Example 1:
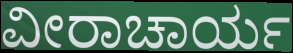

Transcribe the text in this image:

ವೀರಾಚಾರ್ಯ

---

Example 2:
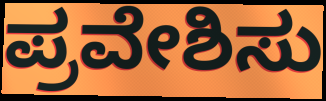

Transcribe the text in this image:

ಪ್ರವೇಶಿಸು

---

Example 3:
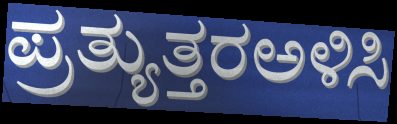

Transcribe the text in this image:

ಪ್ರತ್ಯುತ್ತರಅಳಿಸಿ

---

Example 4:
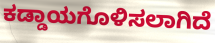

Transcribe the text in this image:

ಕಡ್ಡಾಯಗೊಳಿಸಲಾಗಿದೆ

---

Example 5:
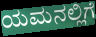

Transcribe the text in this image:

ಯಮನಲ್ಲಿಗೆ